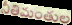
నీతిమంతుల